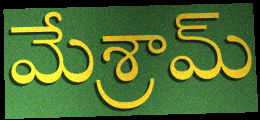
మేశ్రామ్